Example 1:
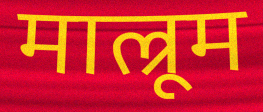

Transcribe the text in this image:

माल्रूम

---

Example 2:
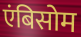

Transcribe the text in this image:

एंबिसोम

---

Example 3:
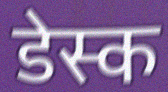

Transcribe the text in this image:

डेस्क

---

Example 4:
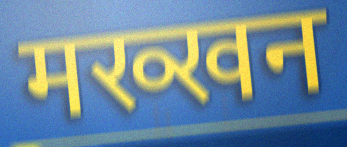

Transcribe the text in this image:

मख्खन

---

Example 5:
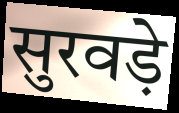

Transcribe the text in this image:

सुरवड़े